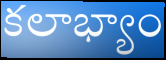
కలాభ్యాం